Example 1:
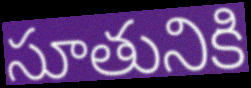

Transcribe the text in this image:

సూతునికి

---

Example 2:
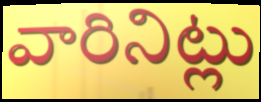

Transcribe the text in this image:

వారినిట్లు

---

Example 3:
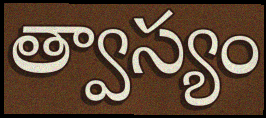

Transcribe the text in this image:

త్వాస్యం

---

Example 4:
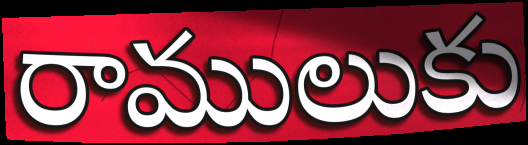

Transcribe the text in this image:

రాములుకు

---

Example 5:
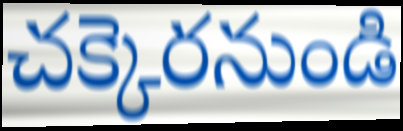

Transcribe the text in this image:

చక్కెరనుండి